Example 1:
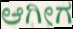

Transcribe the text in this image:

ಆಗೀಗ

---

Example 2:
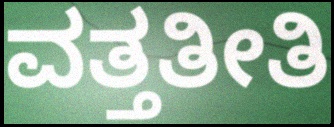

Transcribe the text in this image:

ವತ್ತತೀತಿ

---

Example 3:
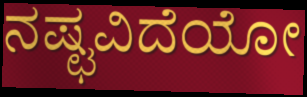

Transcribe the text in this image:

ನಷ್ಟವಿದೆಯೋ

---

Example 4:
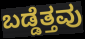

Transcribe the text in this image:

ಬಡ್ಡೆತ್ತವು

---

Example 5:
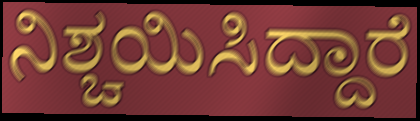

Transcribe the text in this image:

ನಿಶ್ಚಯಿಸಿದ್ದಾರೆ